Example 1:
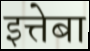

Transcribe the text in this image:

इत्तेबा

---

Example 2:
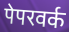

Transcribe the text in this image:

पेपरवर्क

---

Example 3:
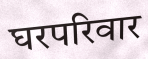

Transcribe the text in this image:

घरपरिवार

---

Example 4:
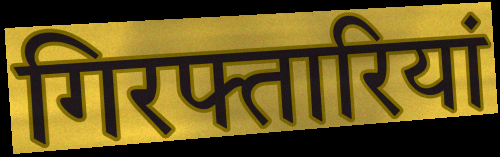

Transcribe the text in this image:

गिरफ्तारियां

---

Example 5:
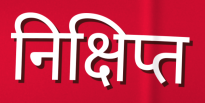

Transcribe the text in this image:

निक्षिप्त